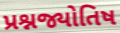
પ્રશ્નજ્યોતિષ